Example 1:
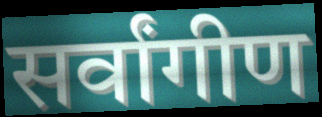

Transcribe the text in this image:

सर्वांगीण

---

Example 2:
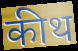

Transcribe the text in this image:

कीथ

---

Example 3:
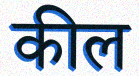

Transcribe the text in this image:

कील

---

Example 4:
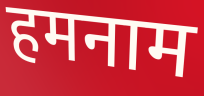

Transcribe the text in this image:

हमनाम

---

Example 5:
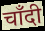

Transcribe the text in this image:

चाँदी